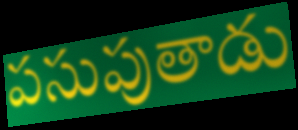
పసుపుతాడు